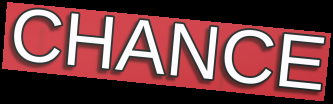
CHANCE